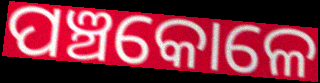
ପଞ୍ଚକୋଳେ